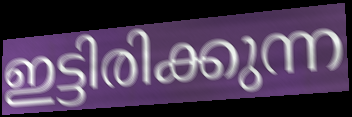
ഇട്ടിരിക്കുന്ന